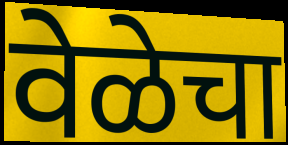
वेळेचा